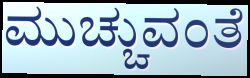
ಮುಚ್ಚುವಂತೆ